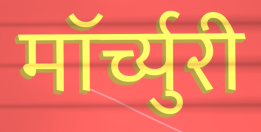
मॉर्च्युरी